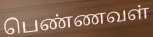
பெண்ணவள்